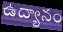
ఉద్యానం